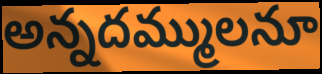
అన్నదమ్ములనూ